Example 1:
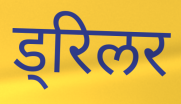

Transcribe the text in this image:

ड्रिलर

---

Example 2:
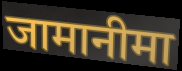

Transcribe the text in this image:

जामानीमा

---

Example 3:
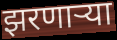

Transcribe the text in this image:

झरणाऱ्या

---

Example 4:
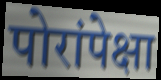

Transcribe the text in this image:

पोरांपेक्षा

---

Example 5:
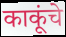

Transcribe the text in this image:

काकूंचे